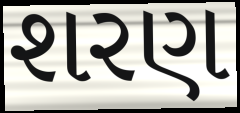
શરણ